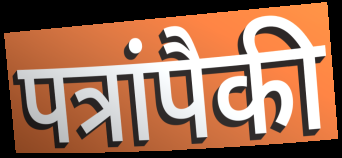
पत्रांपैकी